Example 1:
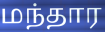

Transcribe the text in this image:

மந்தார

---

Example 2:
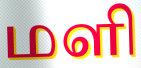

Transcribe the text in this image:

மளி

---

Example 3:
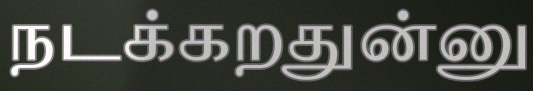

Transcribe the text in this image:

நடக்கறதுன்னு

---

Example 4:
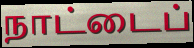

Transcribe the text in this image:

நாட்டைப்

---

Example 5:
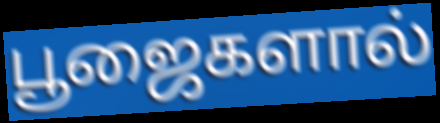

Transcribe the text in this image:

பூஜைகளால்